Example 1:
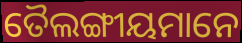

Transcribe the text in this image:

ତୈଲଙ୍ଗୀୟମାନେ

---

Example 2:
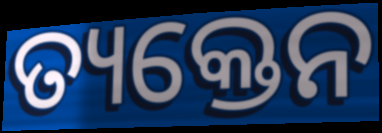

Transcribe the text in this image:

ତ୍ୟକ୍ତେନ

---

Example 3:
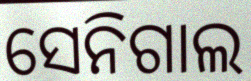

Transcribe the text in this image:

ସେନିଗାଲ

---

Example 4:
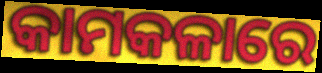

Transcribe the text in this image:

କାମକଳାରେ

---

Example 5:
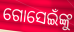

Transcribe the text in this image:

ଗୋସେଇଁଙ୍କୁ